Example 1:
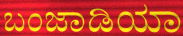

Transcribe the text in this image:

ಬಂಜಾಡಿಯಾ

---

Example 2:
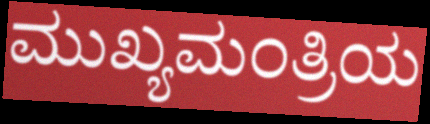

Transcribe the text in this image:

ಮುಖ್ಯಮಂತ್ರಿಯ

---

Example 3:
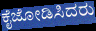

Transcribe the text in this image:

ಕೈಜೋಡಿಸಿದರು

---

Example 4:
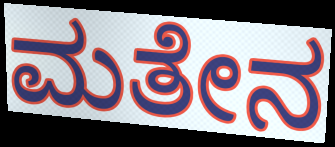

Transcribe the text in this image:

ಮತೇನ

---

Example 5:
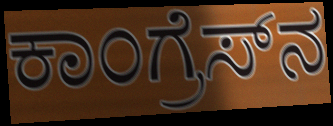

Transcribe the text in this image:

ಕಾಂಗ್ರೆಸ್‍ನ